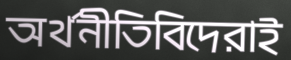
অর্থনীতিবিদেরাই